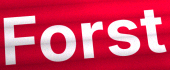
Forst